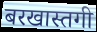
बरखास्तगी